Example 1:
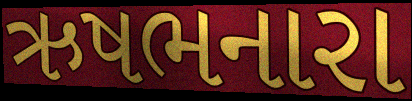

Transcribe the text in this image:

ઋષભનારા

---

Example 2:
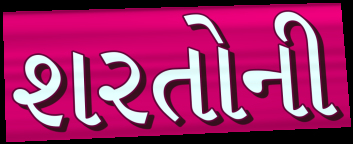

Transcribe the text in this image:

શરતોની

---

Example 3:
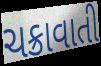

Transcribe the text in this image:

ચક્રાવાતી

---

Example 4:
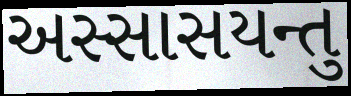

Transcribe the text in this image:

અસ્સાસયન્તુ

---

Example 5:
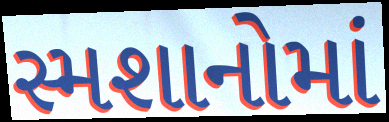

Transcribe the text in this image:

સ્મશાનોમાં